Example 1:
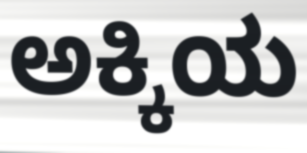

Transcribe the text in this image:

ಅಕ್ಕಿಯ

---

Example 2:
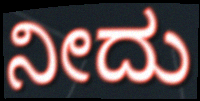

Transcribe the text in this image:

ನೀದು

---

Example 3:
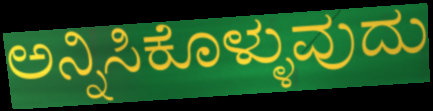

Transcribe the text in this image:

ಅನ್ನಿಸಿಕೊಳ್ಳುವುದು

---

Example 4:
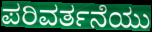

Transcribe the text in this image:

ಪರಿವರ್ತನೆಯು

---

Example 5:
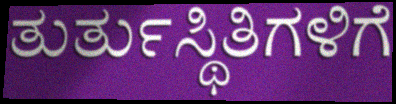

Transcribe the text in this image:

ತುರ್ತುಸ್ಥಿತಿಗಳಿಗೆ